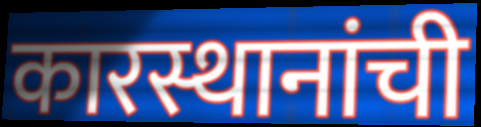
कारस्थानांची